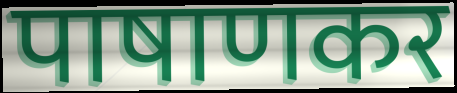
पाषाणकर